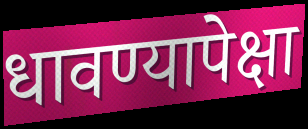
धावण्यापेक्षा